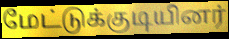
மேட்டுக்குடியினர்